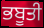
ਭਬੂਤੀ